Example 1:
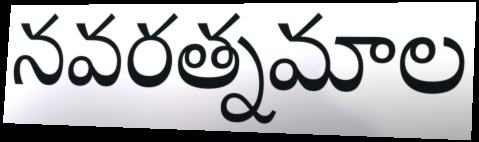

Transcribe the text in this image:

నవరత్నమాల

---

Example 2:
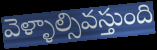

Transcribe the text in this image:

వెళ్ళాల్సివస్తుంది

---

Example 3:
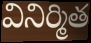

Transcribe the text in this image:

వినిర్మిత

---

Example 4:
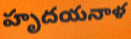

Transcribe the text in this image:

హృదయనాళ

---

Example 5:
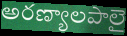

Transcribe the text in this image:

అరణ్యాలపాలై